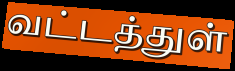
வட்டத்துள்